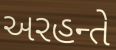
અરહન્તે